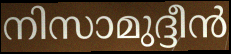
നിസാമുദ്ദീൻ